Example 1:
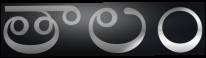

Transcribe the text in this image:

తాలం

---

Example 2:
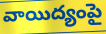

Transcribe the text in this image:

వాయిద్యంపై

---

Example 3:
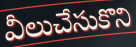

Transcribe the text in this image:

వీలుచేసుకొని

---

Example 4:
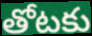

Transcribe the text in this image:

తోటకు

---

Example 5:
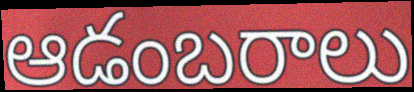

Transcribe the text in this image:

ఆడంబరాలు